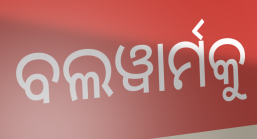
ବଲୱାର୍ମକୁ